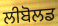
ਲੀਬੋਲਡ